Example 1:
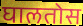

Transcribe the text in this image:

घालतोस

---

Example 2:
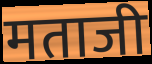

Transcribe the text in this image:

मताजी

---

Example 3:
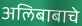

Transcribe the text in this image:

अलिबाबाचे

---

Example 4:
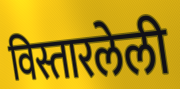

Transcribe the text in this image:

विस्तारलेली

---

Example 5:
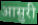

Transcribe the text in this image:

आसुरी